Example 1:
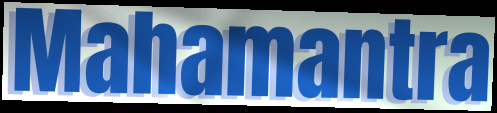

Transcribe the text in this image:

Mahamantra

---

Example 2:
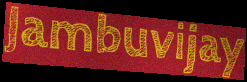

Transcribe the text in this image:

Jambuvijay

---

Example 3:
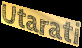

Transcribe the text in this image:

Utarati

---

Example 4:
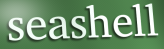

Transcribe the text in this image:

seashell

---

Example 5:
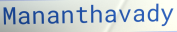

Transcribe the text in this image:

Mananthavady